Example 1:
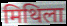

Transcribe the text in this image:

मिथिला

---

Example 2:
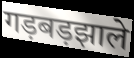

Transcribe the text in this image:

गड़बड़झाले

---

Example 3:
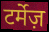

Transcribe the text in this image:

टर्मेज़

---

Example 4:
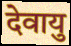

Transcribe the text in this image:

देवायु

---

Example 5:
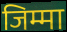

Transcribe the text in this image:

जिम्‍मा